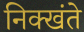
निक्खंते